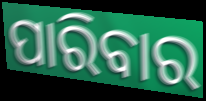
ପାରିବାର